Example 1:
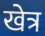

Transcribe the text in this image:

खेत्र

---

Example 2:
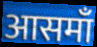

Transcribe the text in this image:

आसमाँ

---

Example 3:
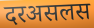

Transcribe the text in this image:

दरअसलस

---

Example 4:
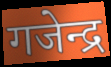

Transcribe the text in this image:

गजेन्द्र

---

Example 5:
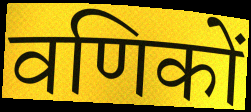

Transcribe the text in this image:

वणिकों